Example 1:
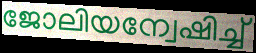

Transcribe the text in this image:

ജോലിയന്വേഷിച്ച്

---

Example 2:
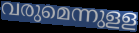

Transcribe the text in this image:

വരുമെന്നുളള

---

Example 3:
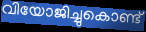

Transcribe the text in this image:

വിയോജിച്ചുകൊണ്ട്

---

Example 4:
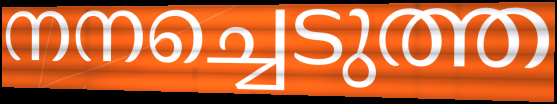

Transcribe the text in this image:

നനച്ചെടുത്ത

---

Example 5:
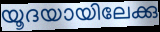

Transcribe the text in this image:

യൂദയായിലേക്കു